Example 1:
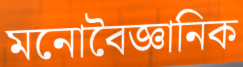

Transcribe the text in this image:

মনোবৈজ্ঞানিক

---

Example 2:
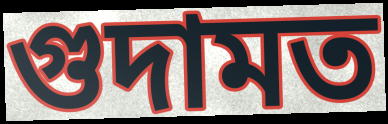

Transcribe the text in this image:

গুদামত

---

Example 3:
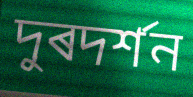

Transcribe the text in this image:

দুৰদৰ্শন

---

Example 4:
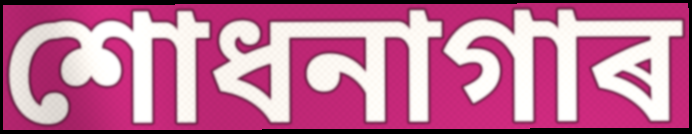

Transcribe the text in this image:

শোধনাগাৰ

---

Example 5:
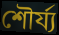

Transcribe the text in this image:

শৌৰ্য্য